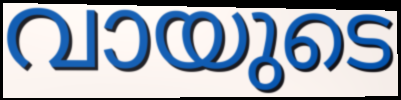
വായുടെ